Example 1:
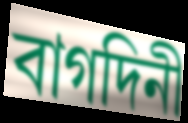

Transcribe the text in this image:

বাগদিনী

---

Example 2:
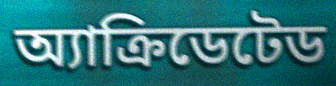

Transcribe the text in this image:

অ্যাক্রিডেটেড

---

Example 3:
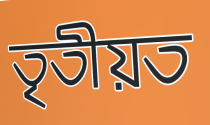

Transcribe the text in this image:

তৃতীয়ত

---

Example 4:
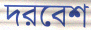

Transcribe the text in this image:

দরবেশ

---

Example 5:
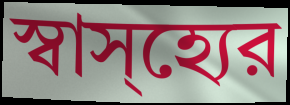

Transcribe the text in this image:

স্বাস্হ্যের